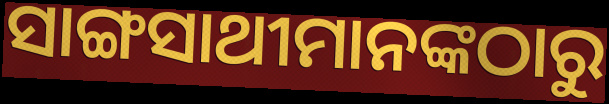
ସାଙ୍ଗସାଥୀମାନଙ୍କଠାରୁ